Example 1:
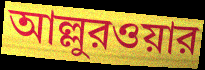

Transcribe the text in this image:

আল্লুরওয়ার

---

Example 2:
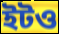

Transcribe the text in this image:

ইটও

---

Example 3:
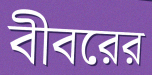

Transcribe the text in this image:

বীবরের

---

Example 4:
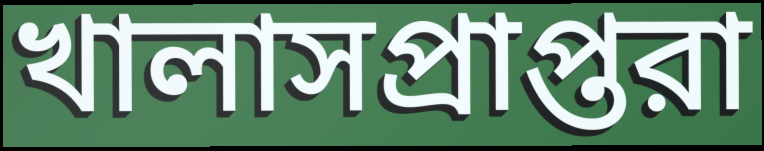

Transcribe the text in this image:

খালাসপ্রাপ্তরা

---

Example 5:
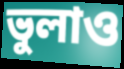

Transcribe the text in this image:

ভুলাও